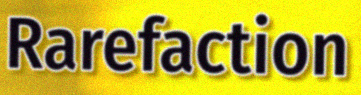
Rarefaction